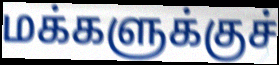
மக்களுக்குச்